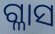
ଗ୍ଳାସ